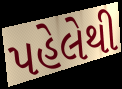
પહેલેથી